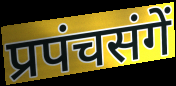
प्रपंचसंगें